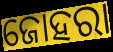
ଜୋହରା